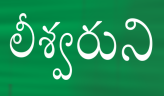
లీశ్వరుని